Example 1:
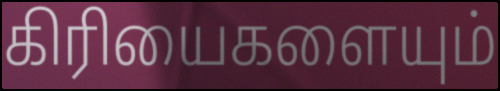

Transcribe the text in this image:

கிரியைகளையும்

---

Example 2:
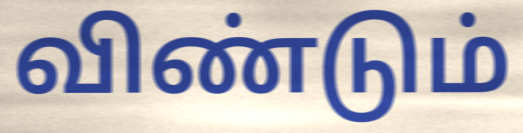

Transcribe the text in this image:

விண்டும்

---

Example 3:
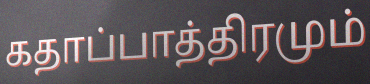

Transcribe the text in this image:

கதாப்பாத்திரமும்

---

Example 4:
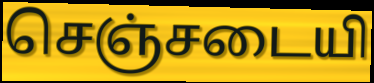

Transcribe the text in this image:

செஞ்சடையி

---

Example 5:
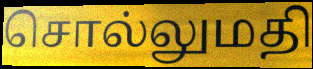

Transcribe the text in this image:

சொல்லுமதி